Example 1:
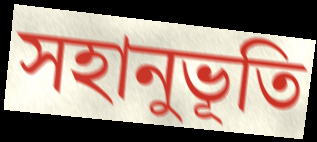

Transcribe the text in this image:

সহানুভূতি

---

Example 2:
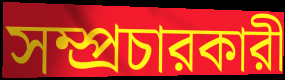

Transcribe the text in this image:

সম্প্রচারকারী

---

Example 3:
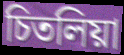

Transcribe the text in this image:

চিতলিয়া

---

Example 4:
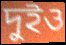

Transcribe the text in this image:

দুইও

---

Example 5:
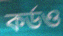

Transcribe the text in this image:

কর্ডও